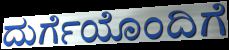
ದುರ್ಗೆಯೊಂದಿಗೆ